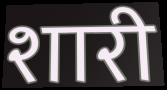
शारी